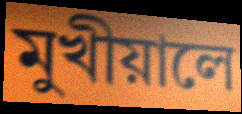
মুখীয়ালে